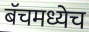
बॅचमध्येच